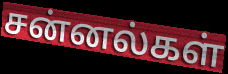
சன்னல்கள்